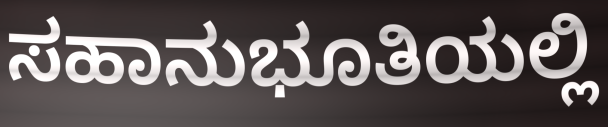
ಸಹಾನುಭೂತಿಯಲ್ಲಿ